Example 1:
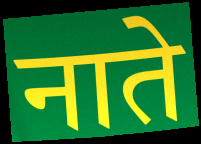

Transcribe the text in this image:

नाते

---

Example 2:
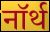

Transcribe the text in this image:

नॉर्थ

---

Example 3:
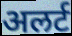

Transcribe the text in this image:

अलर्ट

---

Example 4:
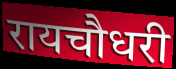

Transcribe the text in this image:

रायचौधरी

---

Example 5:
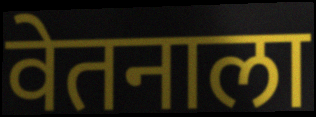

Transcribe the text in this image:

वेतनाला